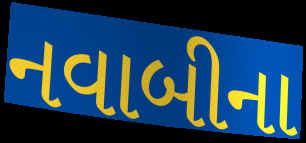
નવાબીના